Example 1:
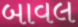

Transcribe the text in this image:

બાવલ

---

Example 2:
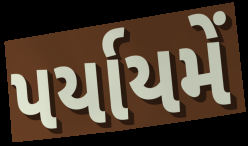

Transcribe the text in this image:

પર્યાયમેં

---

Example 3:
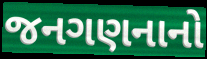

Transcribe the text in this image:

જનગણનાનો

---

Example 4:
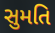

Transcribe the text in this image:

સુમતિ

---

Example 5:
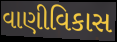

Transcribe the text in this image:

વાણીવિકાસ